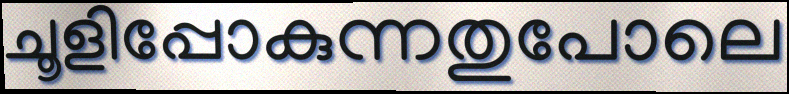
ചൂളിപ്പോകുന്നതുപോലെ